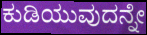
ಕುಡಿಯುವುದನ್ನೇ